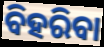
ବିହରିବା